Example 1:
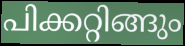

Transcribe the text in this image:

പിക്കറ്റിങ്ങും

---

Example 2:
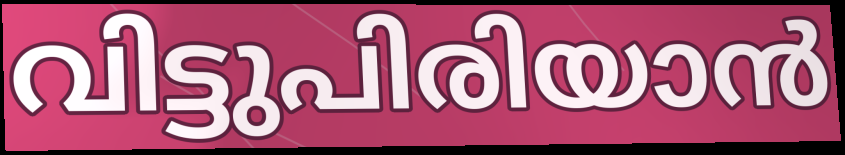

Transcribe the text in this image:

വിട്ടുപിരിയാൻ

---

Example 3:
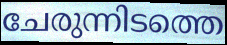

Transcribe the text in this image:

ചേരുന്നിടത്തെ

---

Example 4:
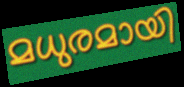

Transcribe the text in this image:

മധുരമായി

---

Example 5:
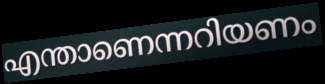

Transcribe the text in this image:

എന്താണെന്നറിയണം